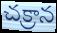
చక్రాన